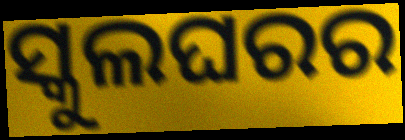
ସ୍କୁଲଘରର